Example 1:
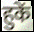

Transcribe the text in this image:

हुकें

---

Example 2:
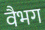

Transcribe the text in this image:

वैभग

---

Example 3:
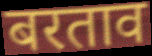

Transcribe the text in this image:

बरताव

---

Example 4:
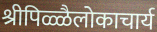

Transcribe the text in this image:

श्रीपिळ्ळैलोकाचार्य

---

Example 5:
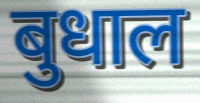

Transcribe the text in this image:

बुधाल